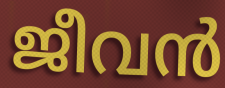
ജീവൻ